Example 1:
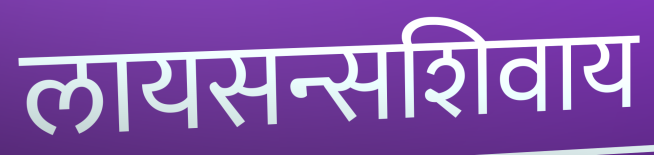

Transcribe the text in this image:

लायसन्सशिवाय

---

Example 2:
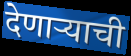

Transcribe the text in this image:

देणाऱ्याची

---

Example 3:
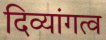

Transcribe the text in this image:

दिव्यांगत्व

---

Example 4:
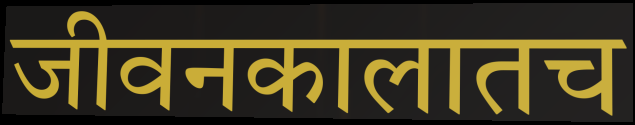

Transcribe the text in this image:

जीवनकालातच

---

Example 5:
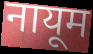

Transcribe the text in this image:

नायूम